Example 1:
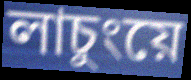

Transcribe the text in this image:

লাচুংয়ে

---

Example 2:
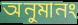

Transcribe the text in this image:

অনুমানং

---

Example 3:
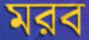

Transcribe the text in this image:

মরব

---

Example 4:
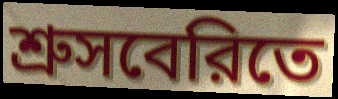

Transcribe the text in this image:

শ্রুসবেরিতে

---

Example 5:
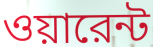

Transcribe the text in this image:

ওয়ারেন্ট